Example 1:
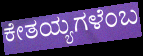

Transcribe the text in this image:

ಕೇತಯ್ಯಗಳೆಂಬ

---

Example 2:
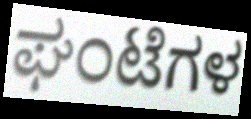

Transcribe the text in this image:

ಘಂಟೆಗಳ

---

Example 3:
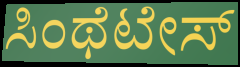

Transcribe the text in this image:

ಸಿಂಥೆಟೇಸ್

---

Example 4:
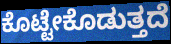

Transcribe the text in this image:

ಕೊಟ್ಟೇಕೊಡುತ್ತದೆ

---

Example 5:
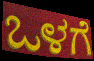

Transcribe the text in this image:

ಒಳಗೆ